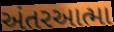
અંતરઆત્મા